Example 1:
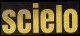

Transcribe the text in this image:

scielo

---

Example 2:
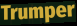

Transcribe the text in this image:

Trumper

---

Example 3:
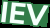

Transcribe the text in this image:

IEV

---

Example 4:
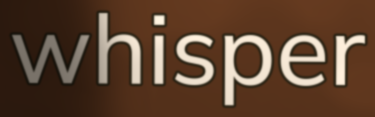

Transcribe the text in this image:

whisper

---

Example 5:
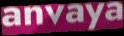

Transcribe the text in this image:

anvaya